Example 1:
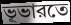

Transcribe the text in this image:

ভূভারতে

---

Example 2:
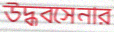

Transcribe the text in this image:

উদ্ধবসেনার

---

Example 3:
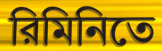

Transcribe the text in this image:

রিমিনিতে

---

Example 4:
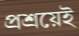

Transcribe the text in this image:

প্রশ্রয়েই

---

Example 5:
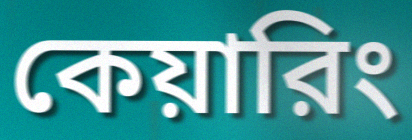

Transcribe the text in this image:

কেয়ারিং